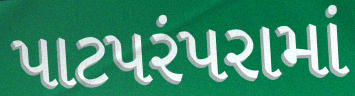
પાટપરંપરામાં